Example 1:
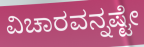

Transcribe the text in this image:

ವಿಚಾರವನ್ನಷ್ಟೇ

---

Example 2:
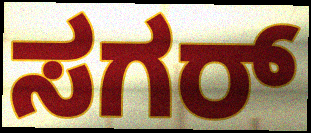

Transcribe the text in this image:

ಸಗರ್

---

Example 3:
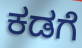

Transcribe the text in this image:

ಕಡಗೆ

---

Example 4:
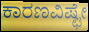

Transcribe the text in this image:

ಕಾರಣವಿಷ್ಟೇ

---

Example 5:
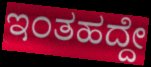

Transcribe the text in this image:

ಇಂತಹದ್ದೇ